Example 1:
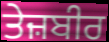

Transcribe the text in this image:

ਤੇਜ਼ਬੀਰ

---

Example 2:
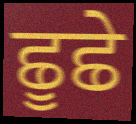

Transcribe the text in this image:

ਛੂਛੇ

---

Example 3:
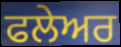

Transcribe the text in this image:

ਫਲੇਅਰ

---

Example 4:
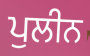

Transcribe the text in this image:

ਪੁਲੀਨ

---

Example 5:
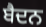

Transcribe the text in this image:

ਬੈਦਨ